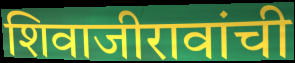
शिवाजीरावांची